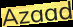
Azaad